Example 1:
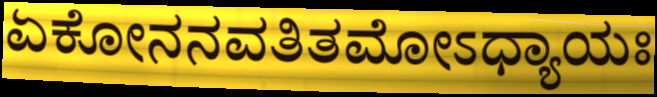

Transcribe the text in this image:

ಏಕೋನನವತಿತಮೋಽಧ್ಯಾಯಃ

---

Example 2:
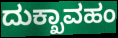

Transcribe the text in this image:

ದುಕ್ಖಾವಹಂ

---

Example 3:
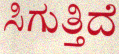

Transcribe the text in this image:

ಸಿಗುತ್ತಿದೆ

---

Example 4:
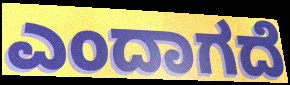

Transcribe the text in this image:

ಎಂದಾಗದೆ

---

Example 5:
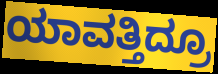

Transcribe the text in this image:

ಯಾವತ್ತಿದ್ರೂ